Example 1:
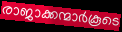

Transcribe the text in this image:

രാജാക്കന്മാർകൂടെ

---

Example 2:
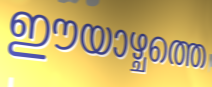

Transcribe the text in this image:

ഈയാഴ്ചത്തെ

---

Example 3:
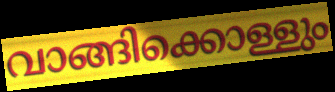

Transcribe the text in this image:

വാങ്ങിക്കൊള്ളും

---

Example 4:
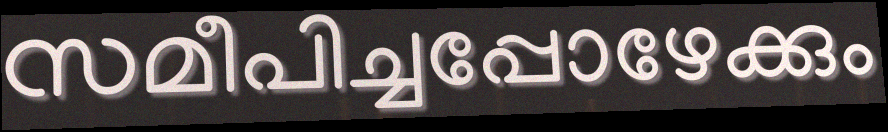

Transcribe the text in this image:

സമീപിച്ചപ്പോഴേക്കും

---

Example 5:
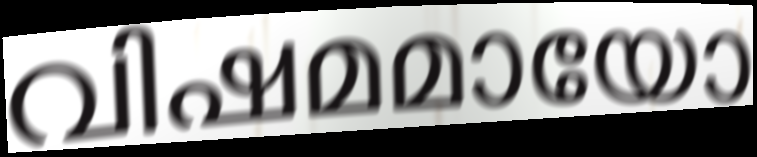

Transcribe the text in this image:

വിഷമമായോ